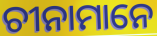
ଚୀନାମାନେ